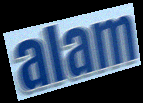
alam